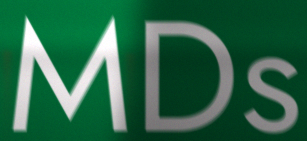
MDs